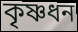
কৃষ্ণধন